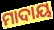
ମାଦାୟ